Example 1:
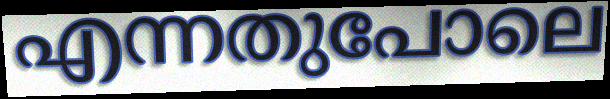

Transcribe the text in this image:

എന്നതുപോലെ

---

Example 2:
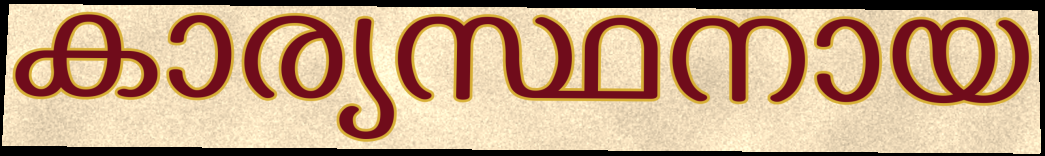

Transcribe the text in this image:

കാര്യസ്ഥനായ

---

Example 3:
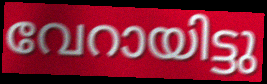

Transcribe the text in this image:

വേറായിട്ടു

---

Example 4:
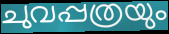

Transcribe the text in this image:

ചുവപ്പത്രയും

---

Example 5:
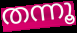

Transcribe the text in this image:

തന്നൂ